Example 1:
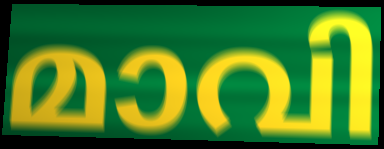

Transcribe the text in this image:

മാവി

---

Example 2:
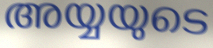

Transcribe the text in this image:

അയ്യയുടെ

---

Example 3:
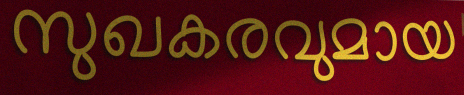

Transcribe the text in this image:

സുഖകരവുമായ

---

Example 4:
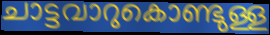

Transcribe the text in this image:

ചാട്ടവാറുകൊണ്ടുള്ള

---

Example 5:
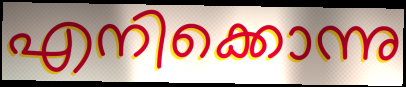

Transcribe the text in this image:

എനിക്കൊന്നു